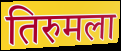
तिरुमला